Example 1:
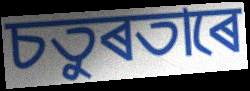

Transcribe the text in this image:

চতুৰতাৰে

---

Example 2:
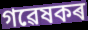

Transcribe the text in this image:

গৱেষকৰ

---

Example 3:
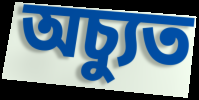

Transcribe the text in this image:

অচ্যুত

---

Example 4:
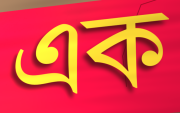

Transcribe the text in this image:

এক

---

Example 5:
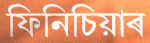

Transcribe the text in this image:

ফিনিচিয়াৰ